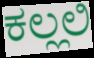
ಕಲ್ಲಲಿ